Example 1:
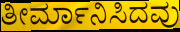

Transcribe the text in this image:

ತೀರ್ಮಾನಿಸಿದವು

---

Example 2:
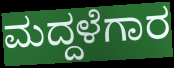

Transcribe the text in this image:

ಮದ್ದಳೆಗಾರ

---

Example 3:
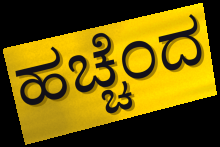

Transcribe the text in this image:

ಹಚ್ಚೆಂದ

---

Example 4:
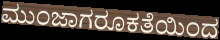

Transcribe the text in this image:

ಮುಂಜಾಗರೂಕತೆಯಿಂದ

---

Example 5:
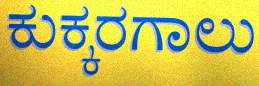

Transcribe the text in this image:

ಕುಕ್ಕರಗಾಲು